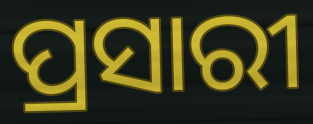
ପ୍ରସାରୀ